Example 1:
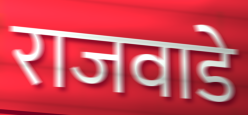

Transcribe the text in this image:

राजवाडे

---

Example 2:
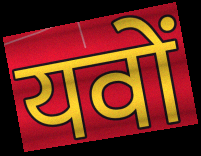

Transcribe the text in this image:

यवों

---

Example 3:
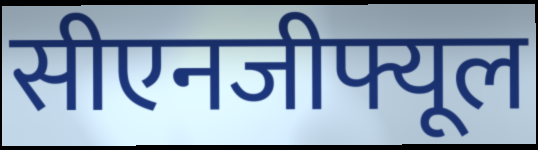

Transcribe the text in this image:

सीएनजीफ्यूल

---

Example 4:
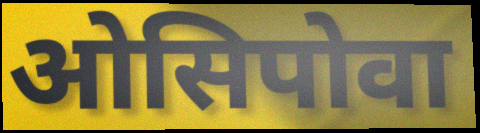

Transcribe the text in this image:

ओसिपोवा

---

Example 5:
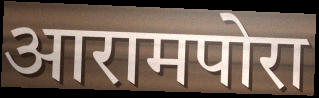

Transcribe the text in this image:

आरामपोरा